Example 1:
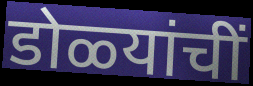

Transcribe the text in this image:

डोळ्यांचीं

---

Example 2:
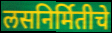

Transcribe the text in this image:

लसनिर्मितीचे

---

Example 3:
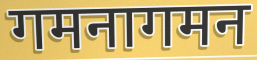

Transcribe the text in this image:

गमनागमन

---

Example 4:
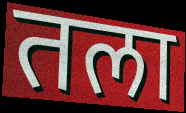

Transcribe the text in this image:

तला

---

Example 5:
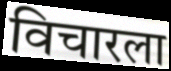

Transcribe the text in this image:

विचारला